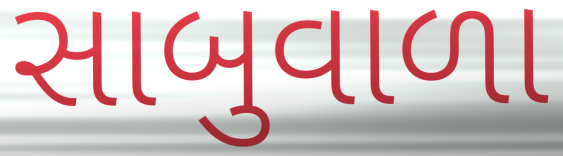
સાબુવાળા